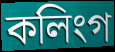
কলিংগ